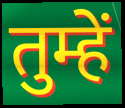
तुम्‍हें